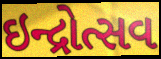
ઇન્દ્રોત્સવ